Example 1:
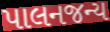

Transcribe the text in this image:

પાલનજન્ય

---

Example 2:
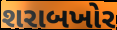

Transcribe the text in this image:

શરાબખોર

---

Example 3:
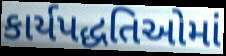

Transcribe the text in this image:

કાર્યપદ્ધતિઓમાં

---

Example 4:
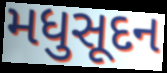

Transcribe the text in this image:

મધુસૂદન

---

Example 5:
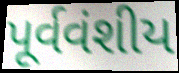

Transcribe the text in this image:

પૂર્વવંશીય